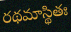
రథమాస్థితః